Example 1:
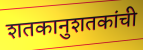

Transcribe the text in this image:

शतकानुशतकांची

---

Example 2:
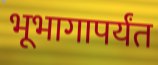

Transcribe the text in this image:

भूभागापर्यंत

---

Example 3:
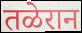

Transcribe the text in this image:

तळेरान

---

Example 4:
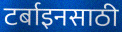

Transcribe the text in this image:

टर्बाइनसाठी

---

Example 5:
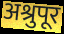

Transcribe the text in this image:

अश्रुपूर